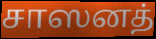
சாஸனத்